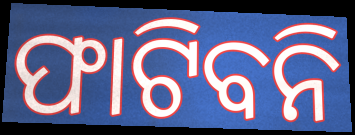
ଫାଟିବନି